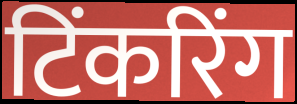
टिंकरिंग